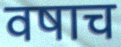
वषाच